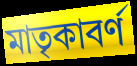
মাতৃকাবর্ণ